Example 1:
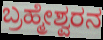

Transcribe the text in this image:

ಬ್ರಹ್ಮೇಶ್ವರನ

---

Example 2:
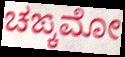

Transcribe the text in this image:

ಚಙ್ಕಮೋ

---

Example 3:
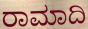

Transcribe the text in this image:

ರಾಮಾದಿ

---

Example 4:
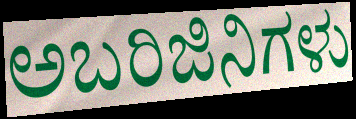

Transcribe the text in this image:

ಅಬರಿಜಿನಿಗಳು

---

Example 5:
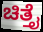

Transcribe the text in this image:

ಚಿತ್ತೈ